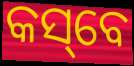
କସ୍‌ବେ